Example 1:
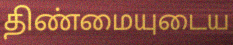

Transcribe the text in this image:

திண்மையுடைய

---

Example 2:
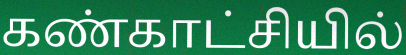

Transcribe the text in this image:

கண்காட்சியில்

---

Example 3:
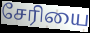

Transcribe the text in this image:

சேரியை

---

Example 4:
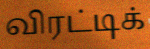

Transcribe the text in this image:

விரட்டிக்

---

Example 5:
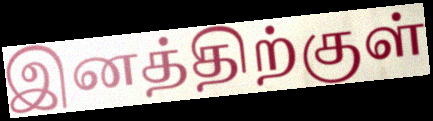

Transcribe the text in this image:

இனத்திற்குள்